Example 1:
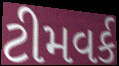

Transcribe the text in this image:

ટીમવર્ક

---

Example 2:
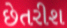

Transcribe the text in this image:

છેતરીશ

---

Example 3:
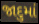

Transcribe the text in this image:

જાદુમાં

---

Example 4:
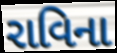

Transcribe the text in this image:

રાવિના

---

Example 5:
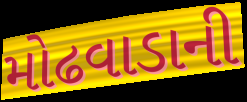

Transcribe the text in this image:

મોઢવાડાની